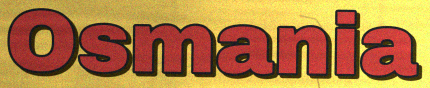
Osmania